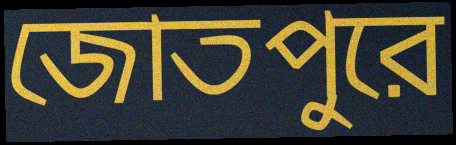
জোতপুরে